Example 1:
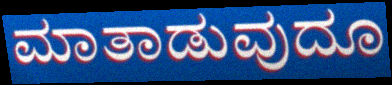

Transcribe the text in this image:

ಮಾತಾಡುವುದೂ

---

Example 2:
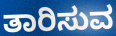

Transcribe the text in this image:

ತಾರಿಸುವ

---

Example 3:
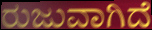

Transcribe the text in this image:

ರುಜುವಾಗಿದೆ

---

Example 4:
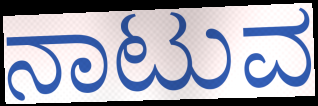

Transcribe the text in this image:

ನಾಟುವ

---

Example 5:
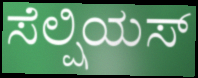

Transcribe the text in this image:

ಸೆಲ್ಷಿಯಸ್